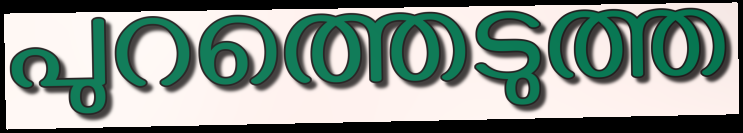
പുറത്തെടുത്ത